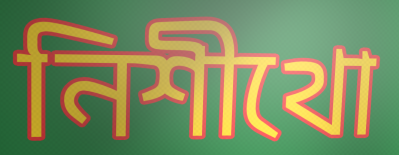
নিশীথো